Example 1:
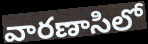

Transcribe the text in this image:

వారణాసిలో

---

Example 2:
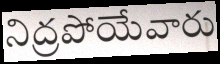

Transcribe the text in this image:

నిద్రపోయేవారు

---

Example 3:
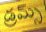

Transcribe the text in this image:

డ్రమ్స్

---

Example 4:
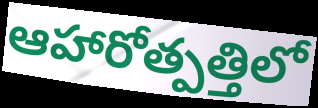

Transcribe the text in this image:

ఆహారోత్పత్తిలో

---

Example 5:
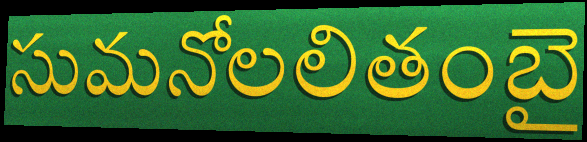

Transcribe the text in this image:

సుమనోలలితంబై